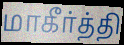
மாகீர்த்தி